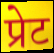
प्रेट